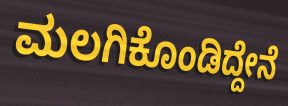
ಮಲಗಿಕೊಂಡಿದ್ದೇನೆ